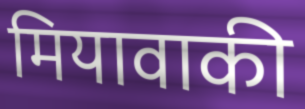
मियावाकी